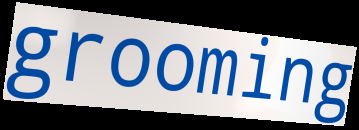
grooming